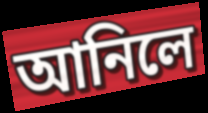
আনিলে